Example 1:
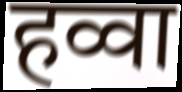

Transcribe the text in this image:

हव्वा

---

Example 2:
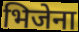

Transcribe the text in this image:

भिजेना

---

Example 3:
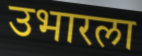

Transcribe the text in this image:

उभारला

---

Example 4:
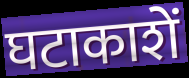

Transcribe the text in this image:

घटाकाशें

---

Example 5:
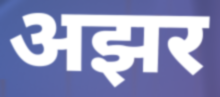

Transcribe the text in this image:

अझर